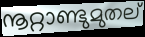
നൂറ്റാണ്ടുമുതല്